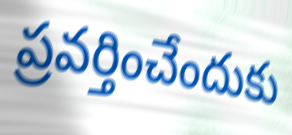
ప్రవర్తించేందుకు